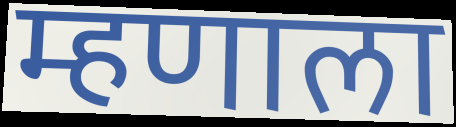
म्‍हणाला